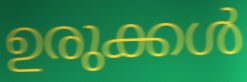
ഉരുക്കൾ